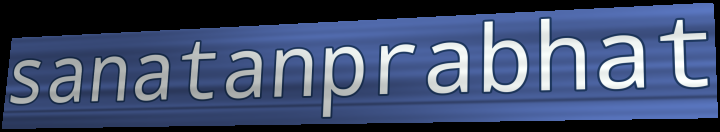
sanatanprabhat